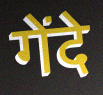
गेंदे